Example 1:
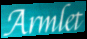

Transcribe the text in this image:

Armlet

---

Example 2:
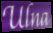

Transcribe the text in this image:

Ulna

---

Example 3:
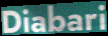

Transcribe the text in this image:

Diabari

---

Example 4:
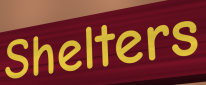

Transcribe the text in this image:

Shelters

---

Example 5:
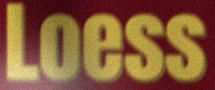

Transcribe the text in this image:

Loess